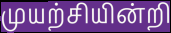
முயற்சியின்றி